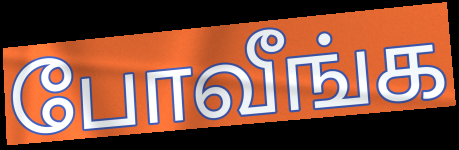
போவீங்க